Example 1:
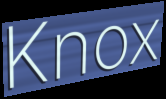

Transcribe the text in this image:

Knox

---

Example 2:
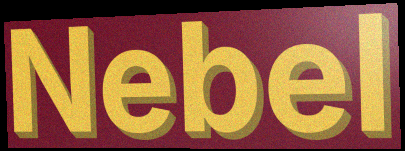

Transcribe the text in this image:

Nebel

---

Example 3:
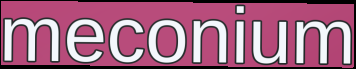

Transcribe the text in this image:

meconium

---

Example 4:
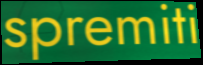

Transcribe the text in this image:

spremiti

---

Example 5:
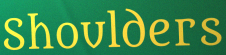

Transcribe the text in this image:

Shoulders